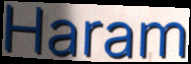
Haram